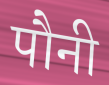
पौनी